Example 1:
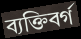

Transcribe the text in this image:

ব্যক্তিবর্গ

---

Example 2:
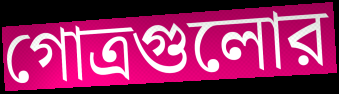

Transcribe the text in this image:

গোত্রগুলোর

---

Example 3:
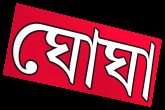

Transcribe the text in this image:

ঘোঘা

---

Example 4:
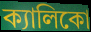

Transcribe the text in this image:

ক্যালিকো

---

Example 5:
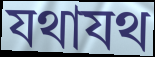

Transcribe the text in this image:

যথাযথ